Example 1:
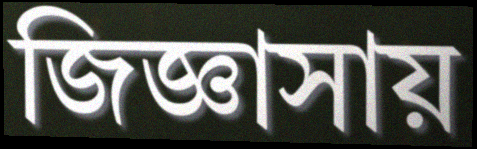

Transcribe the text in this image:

জিজ্ঞাসায়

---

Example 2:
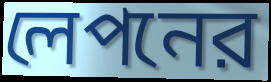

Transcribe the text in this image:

লেপনের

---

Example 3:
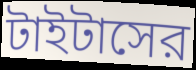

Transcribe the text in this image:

টাইটাসের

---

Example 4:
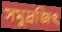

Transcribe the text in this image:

সমুদ্রজিৎ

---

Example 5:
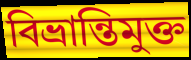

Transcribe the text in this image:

বিভ্রান্তিমুক্ত